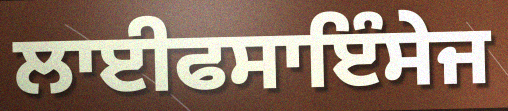
ਲਾਈਫਸਾਇੰਸੇਜ